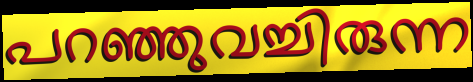
പറഞ്ഞുവച്ചിരുന്ന